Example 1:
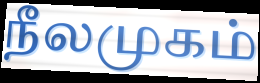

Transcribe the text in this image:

நீலமுகம்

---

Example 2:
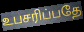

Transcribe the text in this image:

உபசரிப்பதே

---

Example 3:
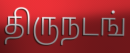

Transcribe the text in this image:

திருநடங்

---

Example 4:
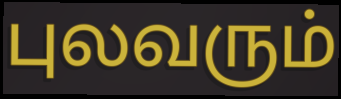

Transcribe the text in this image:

புலவரும்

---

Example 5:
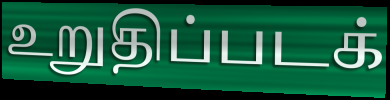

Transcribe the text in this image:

உறுதிப்படக்